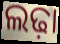
ଲଢ଼ା